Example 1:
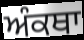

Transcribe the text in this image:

ਅੰਕਥਾ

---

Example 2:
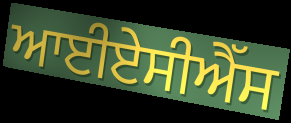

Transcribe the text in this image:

ਆਈਏਸੀਐੱਸ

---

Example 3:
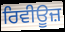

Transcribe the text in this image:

ਰਿਵੀਊਜ਼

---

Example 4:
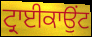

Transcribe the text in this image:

ਟ੍ਰਾਈਕਾਉਂਟ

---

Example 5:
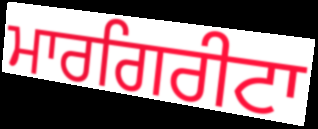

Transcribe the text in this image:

ਮਾਰਗਿਰੀਟਾ